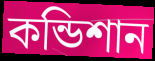
কন্ডিশান